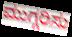
ಮುಗ್ಗರಿಸು